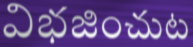
విభజించుట